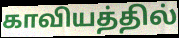
காவியத்தில்